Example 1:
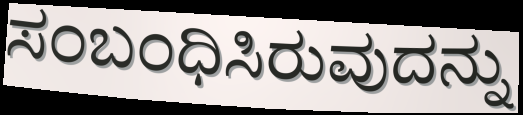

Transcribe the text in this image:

ಸಂಬಂಧಿಸಿರುವುದನ್ನು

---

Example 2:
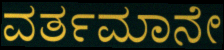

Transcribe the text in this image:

ವರ್ತಮಾನೇ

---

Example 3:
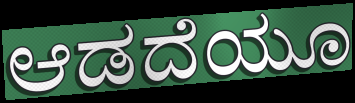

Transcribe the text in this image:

ಆಡದೆಯೂ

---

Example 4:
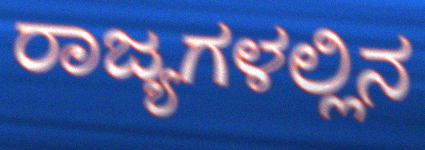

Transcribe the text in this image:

ರಾಜ್ಯಗಳಲ್ಲಿನ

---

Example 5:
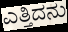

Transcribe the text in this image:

ಎತ್ತಿದನು